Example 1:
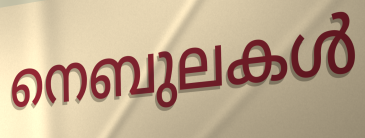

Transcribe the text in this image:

നെബുലകൾ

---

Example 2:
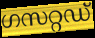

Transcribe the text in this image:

ഗസറ്റഡ്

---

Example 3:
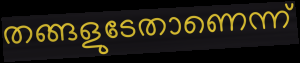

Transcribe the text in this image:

തങ്ങളുടേതാണെന്ന്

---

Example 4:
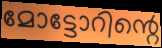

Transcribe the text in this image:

മോട്ടോറിന്റെ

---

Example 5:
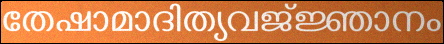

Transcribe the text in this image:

തേഷാമാദിത്യവജ്ജ്ഞാനം